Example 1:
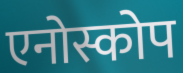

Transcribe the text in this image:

एनोस्कोप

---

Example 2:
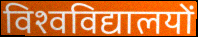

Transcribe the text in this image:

विश्वविद्यालयों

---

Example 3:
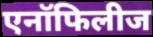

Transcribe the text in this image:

एनॉफिलीज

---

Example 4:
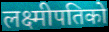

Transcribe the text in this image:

लक्ष्मीपतिको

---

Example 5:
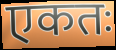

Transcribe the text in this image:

एकतः